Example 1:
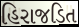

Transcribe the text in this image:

હિરાજડિત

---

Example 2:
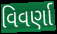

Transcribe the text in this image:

વિવર્ણા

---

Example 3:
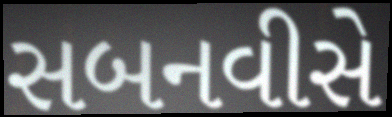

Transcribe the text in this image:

સબનવીસે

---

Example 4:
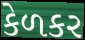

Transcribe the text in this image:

કેળકર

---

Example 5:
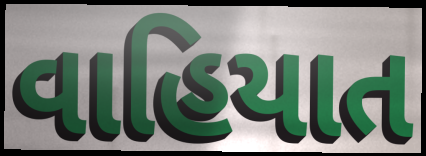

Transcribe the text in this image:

વાહિયાત